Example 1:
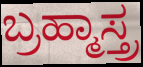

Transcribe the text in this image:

ಬ್ರಹ್ಮಾಸ್ತ್ರ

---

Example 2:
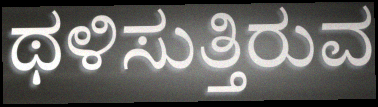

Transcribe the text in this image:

ಥಳಿಸುತ್ತಿರುವ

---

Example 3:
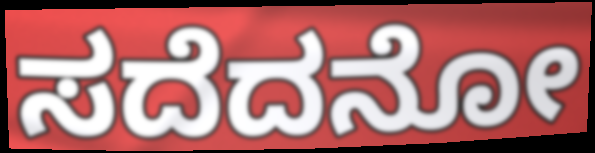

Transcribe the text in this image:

ಸದೆದನೋ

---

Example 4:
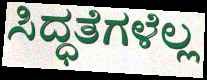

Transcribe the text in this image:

ಸಿದ್ಧತೆಗಳೆಲ್ಲ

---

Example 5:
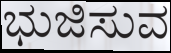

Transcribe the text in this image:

ಭುಜಿಸುವ